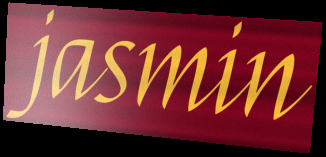
jasmin